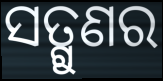
ସତ୍ଗୁଣର